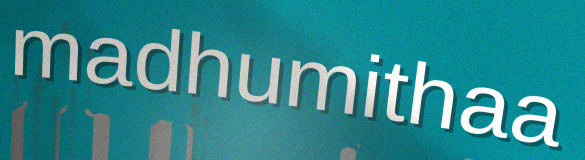
madhumithaa